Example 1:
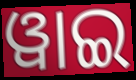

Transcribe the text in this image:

ୱାଇ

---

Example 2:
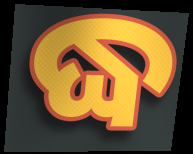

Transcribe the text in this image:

ଦ୍ଧ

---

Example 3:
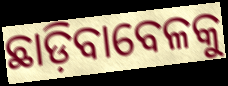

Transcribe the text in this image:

ଛାଡ଼ିବାବେଳକୁ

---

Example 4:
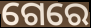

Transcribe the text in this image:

ଗେରେ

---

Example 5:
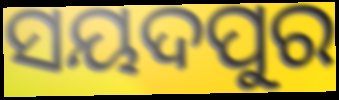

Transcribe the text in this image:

ସୟଦପୁର